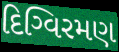
દિગ્વિરમણ